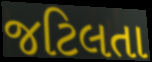
જટિલતા